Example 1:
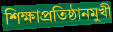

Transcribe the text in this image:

শিক্ষাপ্রতিষ্ঠানমুখী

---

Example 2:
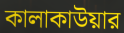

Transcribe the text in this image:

কালাকাউয়ার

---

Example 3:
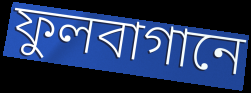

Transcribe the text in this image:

ফুলবাগানে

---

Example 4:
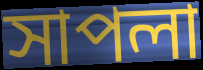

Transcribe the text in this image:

সাপলা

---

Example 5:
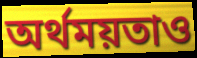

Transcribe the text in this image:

অর্থময়তাও